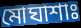
মোঘাশাঃ